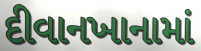
દીવાનખાનામાં